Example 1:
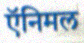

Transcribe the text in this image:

ऍनिमल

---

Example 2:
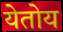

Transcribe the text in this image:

येतोय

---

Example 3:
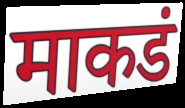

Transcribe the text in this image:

माकडं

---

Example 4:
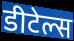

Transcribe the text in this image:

डीटेल्स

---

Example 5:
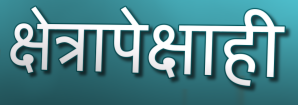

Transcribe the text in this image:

क्षेत्रापेक्षाही